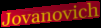
Jovanovich